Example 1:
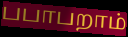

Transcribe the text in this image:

பபாபறாம்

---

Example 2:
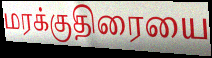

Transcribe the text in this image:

மரக்குதிரையை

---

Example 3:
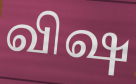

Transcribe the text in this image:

விஷ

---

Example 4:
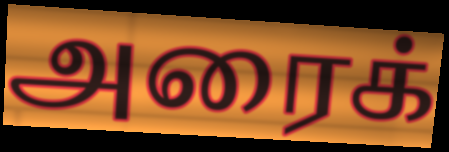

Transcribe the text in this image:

அரைக்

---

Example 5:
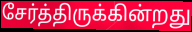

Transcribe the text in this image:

சேர்த்திருக்கின்றது